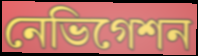
নেভিগেশন